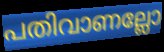
പതിവാണല്ലോ